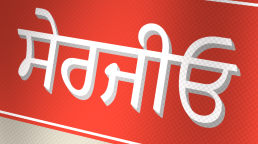
ਸੇਰਜੀਓ